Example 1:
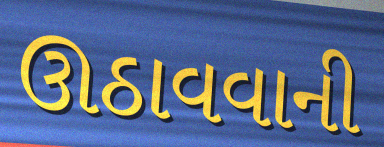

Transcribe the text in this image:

ઊઠાવવાની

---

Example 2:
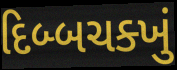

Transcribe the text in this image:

દિબ્બચક્ખું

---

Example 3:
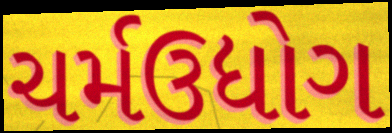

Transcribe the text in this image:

ચર્મઉદ્યોગ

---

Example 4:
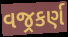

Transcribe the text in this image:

વજ્રકર્ણ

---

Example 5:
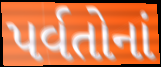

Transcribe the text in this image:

પર્વતોનાં